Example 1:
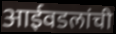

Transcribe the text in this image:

आईवडलांची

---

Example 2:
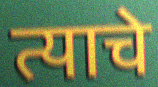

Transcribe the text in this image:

त्याचे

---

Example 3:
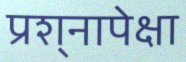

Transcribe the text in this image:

प्रश्नापेक्षा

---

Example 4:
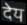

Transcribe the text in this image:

देय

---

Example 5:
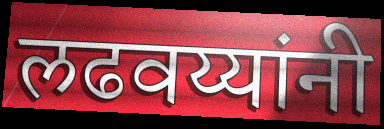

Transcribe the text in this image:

लढवय्यांनी